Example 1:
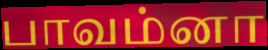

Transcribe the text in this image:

பாவம்னா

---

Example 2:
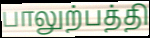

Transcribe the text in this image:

பாலுற்பத்தி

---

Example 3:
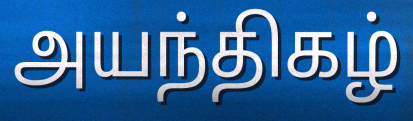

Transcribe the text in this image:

அயந்திகழ்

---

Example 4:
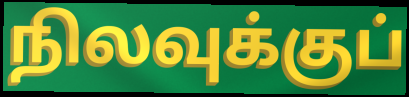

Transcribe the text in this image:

நிலவுக்குப்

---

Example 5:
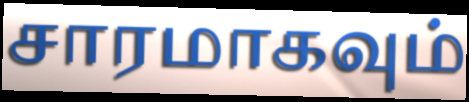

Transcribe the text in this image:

சாரமாகவும்